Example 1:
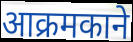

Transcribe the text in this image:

आक्रमकाने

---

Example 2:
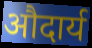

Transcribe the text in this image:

औदार्य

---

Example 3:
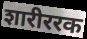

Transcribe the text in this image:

शारीररक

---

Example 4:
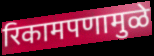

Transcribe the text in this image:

रिकामपणामुळे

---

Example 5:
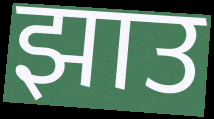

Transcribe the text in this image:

झाउ